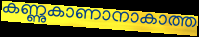
കണ്ണുകാണാനാകാത്ത